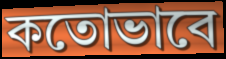
কতোভাবে